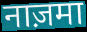
नाज़मा